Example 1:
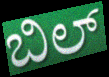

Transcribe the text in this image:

ಬಿಲ್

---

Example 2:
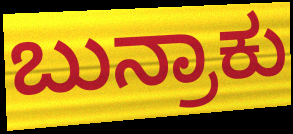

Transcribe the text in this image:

ಬುನ್ರಾಕು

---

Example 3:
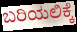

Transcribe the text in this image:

ಬರಿಯಲಿಕ್ಕೆ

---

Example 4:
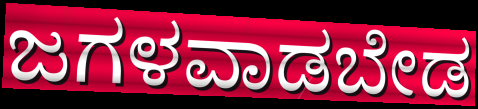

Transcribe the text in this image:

ಜಗಳವಾಡಬೇಡ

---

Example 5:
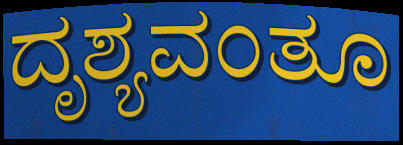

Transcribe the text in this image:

ದೃಶ್ಯವಂತೂ